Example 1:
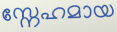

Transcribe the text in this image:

സ്നേഹമായ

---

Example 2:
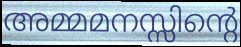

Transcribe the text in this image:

അമ്മമനസ്സിന്റെ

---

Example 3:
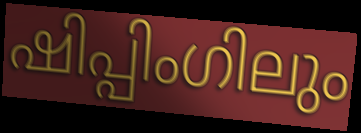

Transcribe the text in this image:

ഷിപ്പിംഗിലും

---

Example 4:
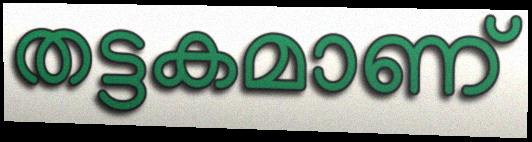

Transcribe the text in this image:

തട്ടകമാണ്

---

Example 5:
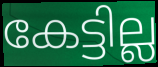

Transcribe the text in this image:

കേട്ടില്ല